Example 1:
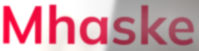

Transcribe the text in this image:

Mhaske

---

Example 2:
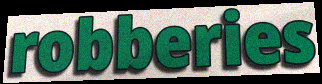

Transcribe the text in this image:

robberies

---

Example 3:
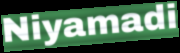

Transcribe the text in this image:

Niyamadi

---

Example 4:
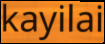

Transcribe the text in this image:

kayilai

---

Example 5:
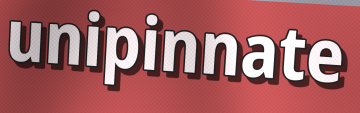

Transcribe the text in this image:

unipinnate